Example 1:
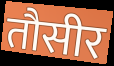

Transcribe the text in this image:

तौसीर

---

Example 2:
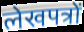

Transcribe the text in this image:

लेखपत्रों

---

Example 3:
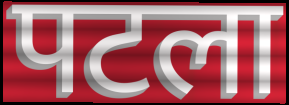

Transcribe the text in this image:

पटला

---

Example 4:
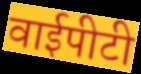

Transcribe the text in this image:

वाईपीटी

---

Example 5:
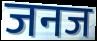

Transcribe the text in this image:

जनज